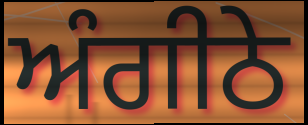
ਅੰਗੀਠੇ